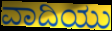
ವಾದಿಯು